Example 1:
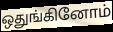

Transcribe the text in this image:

ஒதுங்கினோம்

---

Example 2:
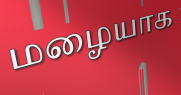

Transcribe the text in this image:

மழையாக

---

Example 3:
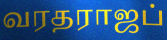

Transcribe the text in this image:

வரதராஜப்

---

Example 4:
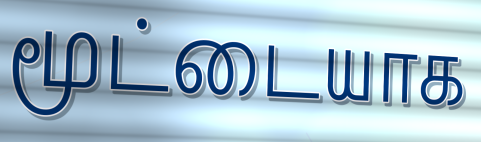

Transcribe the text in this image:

மூட்டையாக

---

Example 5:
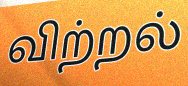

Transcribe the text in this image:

விற்றல்